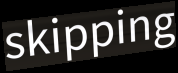
skipping